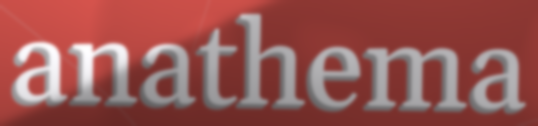
anathema